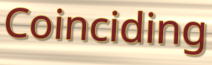
Coinciding